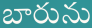
బారును